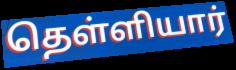
தெள்ளியார்